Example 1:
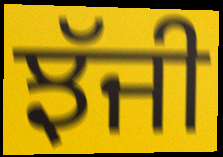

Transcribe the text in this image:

ਝੱਜੀ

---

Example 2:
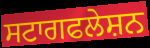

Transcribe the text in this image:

ਸਟਾਗਫਲੇਸ਼ਨ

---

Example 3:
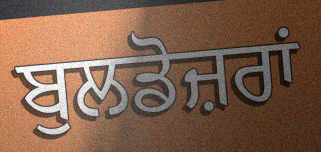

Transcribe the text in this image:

ਬੁਲਡੋਜ਼ਰਾਂ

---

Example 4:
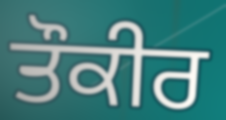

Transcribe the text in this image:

ਤੌਕੀਰ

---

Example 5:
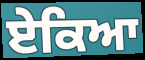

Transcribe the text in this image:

ਏਕਿਆ